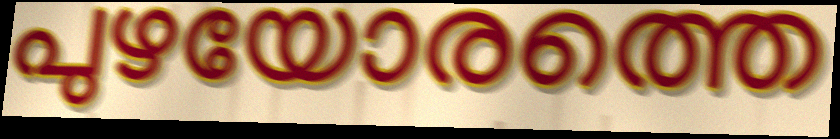
പുഴയോരത്തെ